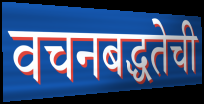
वचनबद्धतेची